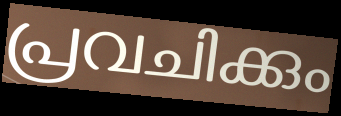
പ്രവചിക്കും